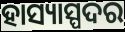
ହାସ୍ୟାସ୍ପଦର